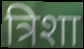
त्रिशा